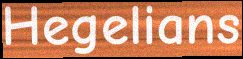
Hegelians